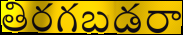
తిరగబడరా